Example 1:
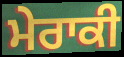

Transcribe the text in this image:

ਮੇਰਾਕੀ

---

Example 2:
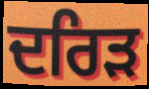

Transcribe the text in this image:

ਦਰਿੜ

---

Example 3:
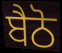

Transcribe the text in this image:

ਬੈਠੋ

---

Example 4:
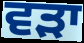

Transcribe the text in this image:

ਵੜਾ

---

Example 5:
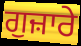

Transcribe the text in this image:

ਗੁਜ਼ਾਰੇ